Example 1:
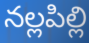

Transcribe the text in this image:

నల్లపిల్లి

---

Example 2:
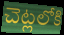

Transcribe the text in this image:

చెట్లలోకి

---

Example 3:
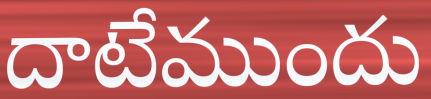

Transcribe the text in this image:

దాటేముందు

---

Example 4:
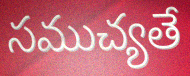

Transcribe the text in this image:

సముచ్యతే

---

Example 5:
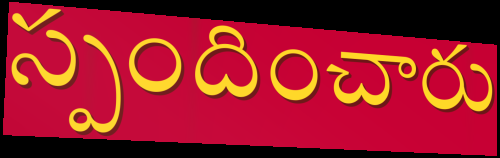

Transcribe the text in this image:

స్పందించారు